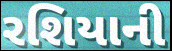
રશિયાની